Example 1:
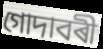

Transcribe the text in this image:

গোদাবৰী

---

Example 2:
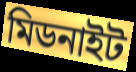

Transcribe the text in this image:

মিডনাইট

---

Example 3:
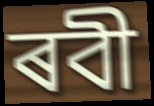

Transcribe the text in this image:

ৰবী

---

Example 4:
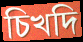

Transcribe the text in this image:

চিখদি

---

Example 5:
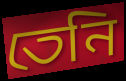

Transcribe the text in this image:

তেনি